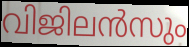
വിജിലൻസും